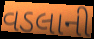
વડલાની